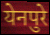
येनपुरे